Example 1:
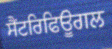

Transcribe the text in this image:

ਸੈਂਟਰਿਫਿਊਗਲ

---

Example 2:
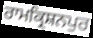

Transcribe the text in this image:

ਰਾਮਕ੍ਰਿਸ਼ਨਪੁਰ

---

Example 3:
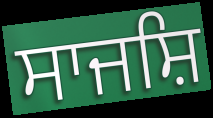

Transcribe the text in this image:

ਸਾਜਸ਼ਿ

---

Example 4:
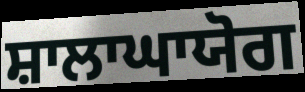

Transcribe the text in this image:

ਸ਼ਾਲਾਘਾਯੋਗ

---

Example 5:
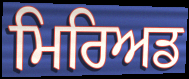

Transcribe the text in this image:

ਮਿਰਿਅਡ